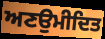
ਅਣਉਮੀਦਿਤ